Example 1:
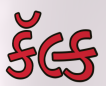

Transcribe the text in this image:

કૅલ્ક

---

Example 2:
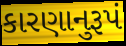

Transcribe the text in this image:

કારણાનુરૂપં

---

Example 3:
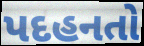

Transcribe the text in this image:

પદહનતો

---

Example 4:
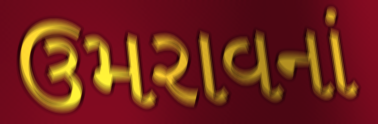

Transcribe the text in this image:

ઉમરાવનાં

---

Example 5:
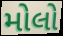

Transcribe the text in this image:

મોલો